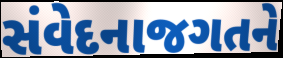
સંવેદનાજગતને